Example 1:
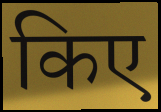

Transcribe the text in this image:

किए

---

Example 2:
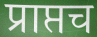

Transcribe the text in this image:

प्राप्तच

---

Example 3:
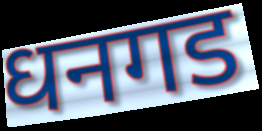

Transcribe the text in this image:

धनगड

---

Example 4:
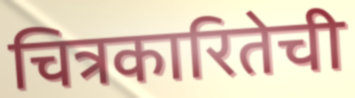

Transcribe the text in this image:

चित्रकारितेची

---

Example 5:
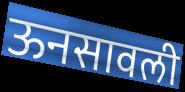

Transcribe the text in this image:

ऊनसावली